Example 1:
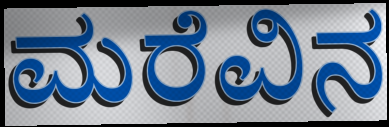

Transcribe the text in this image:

ಮರೆವಿನ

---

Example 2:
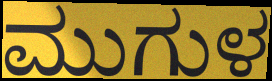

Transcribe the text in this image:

ಮುಗುಳ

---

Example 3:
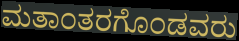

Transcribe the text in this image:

ಮತಾಂತರಗೊಂಡವರು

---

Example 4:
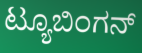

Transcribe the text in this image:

ಟ್ಯೂಬಿಂಗನ್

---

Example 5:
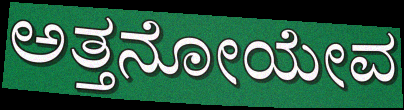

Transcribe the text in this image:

ಅತ್ತನೋಯೇವ